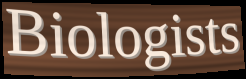
Biologists